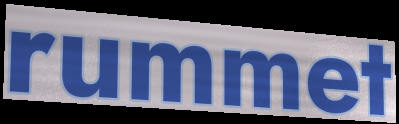
rummet